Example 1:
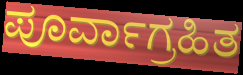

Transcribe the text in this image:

ಪೂರ್ವಾಗ್ರಹಿತ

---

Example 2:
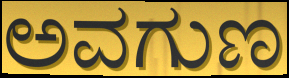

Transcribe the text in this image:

ಅವಗುಣ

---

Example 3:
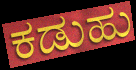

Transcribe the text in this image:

ಕಡುಹು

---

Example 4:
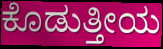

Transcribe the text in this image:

ಕೊಡುತ್ತೀಯ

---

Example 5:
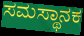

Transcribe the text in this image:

ಸಮಸ್ಥಾನಕ